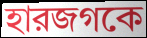
হারজগকে